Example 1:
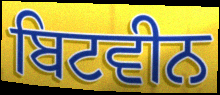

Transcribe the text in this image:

ਬਿਟਵੀਨ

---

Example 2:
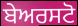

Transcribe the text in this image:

ਬੇਅਰਸਟੋ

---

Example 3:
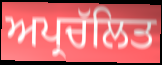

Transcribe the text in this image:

ਅਪ੍ਰਚੱਲਿਤ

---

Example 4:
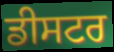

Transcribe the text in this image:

ਡੀਸਟਰ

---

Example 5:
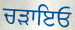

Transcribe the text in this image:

ਚੜਾਇਓ